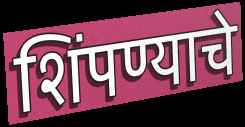
शिंपण्याचे